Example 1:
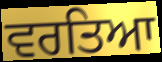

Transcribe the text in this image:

ਵਰਤਿਆ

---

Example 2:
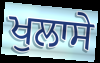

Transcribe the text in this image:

ਖੁਲਾਸੇ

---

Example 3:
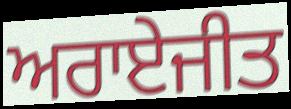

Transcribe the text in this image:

ਅਰਾਏਜੀਤ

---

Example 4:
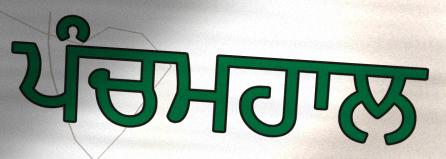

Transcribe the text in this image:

ਪੰਚਮਹਾਲ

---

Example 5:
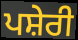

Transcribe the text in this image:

ਪਸ਼ੇਰੀ